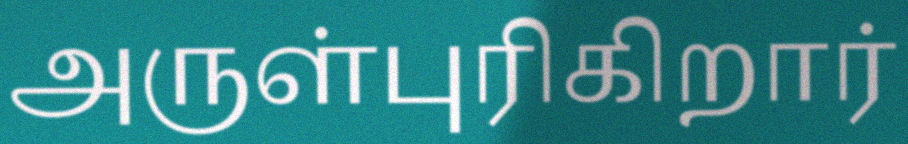
அருள்புரிகிறார்